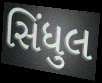
સિંધુલ